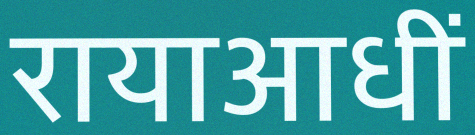
रायाआधीं